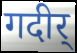
गदीर्